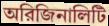
অরিজিনালিটি